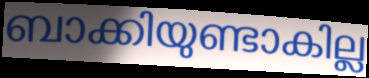
ബാക്കിയുണ്ടാകില്ല